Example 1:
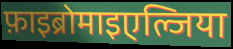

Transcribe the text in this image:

फ़ाइब्रोमाइएल्जिया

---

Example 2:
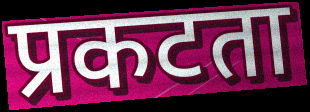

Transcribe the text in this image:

प्रकटता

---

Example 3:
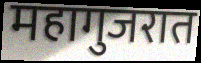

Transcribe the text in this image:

महागुजरात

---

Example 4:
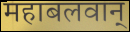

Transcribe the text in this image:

महाबलवान्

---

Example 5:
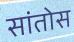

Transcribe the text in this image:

सांतोस